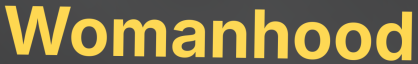
Womanhood